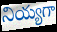
నియ్యగా